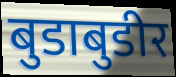
बुडाबुडीर